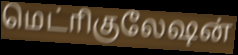
மெட்ரிகுலேஷன்